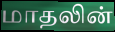
மாதலின்